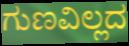
ಗುಣವಿಲ್ಲದ